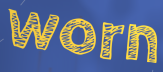
worn